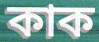
কাক